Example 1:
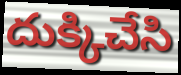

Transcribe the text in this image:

దుక్కిచేసి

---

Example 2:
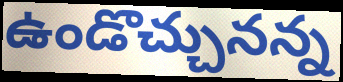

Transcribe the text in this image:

ఉండొచ్చునన్న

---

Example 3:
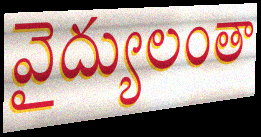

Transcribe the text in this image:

వైద్యులంతా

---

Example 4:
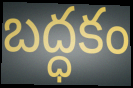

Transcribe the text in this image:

బద్ధకం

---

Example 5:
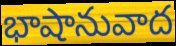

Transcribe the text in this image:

భాషానువాద